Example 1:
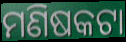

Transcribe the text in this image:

ମଣିଷକଟା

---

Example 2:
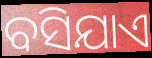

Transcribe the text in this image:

ବସିଯାଏ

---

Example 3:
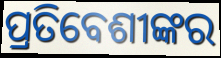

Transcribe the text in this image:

ପ୍ରତିବେଶୀଙ୍କର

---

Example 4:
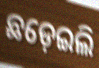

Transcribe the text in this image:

ଛଡ଼େଇଲି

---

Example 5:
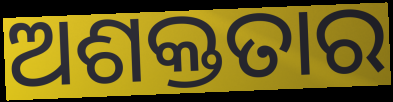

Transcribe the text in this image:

ଅଶକ୍ତତାର